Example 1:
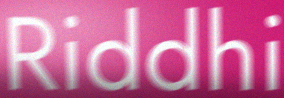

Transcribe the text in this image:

Riddhi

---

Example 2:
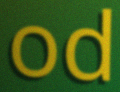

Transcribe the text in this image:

od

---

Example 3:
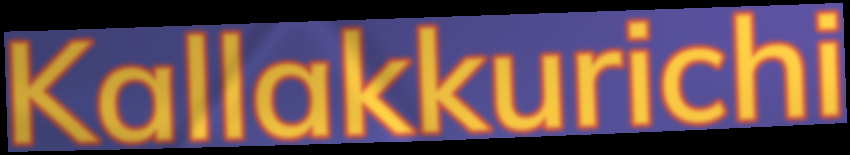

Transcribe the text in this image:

Kallakkurichi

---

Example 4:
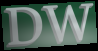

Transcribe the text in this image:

DW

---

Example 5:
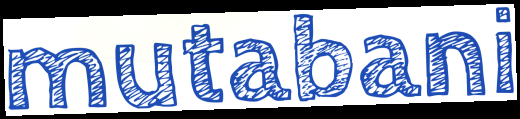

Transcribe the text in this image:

mutabani